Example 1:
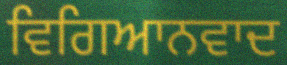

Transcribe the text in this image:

ਵਿਗਿਆਨਵਾਦ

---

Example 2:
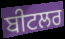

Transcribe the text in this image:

ਬੀਟਲਰ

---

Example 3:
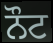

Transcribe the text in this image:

ਨੌਟ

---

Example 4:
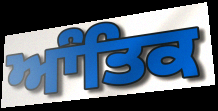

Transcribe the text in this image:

ਆੰਤਿਕ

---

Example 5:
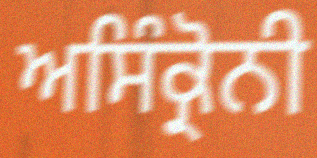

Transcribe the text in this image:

ਅਸਿੰਕ੍ਰੋਨੀ